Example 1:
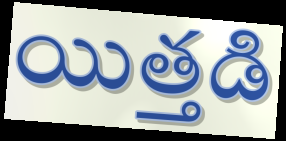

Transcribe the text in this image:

యిత్తడి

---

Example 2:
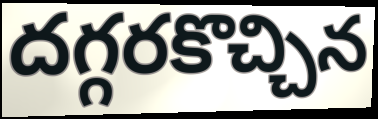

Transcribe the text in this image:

దగ్గరకొచ్చిన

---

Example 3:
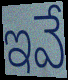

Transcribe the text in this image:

ఇవే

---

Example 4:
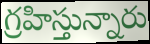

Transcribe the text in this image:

గ్రహిస్తున్నారు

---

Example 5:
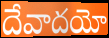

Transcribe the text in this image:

దేవాదయో